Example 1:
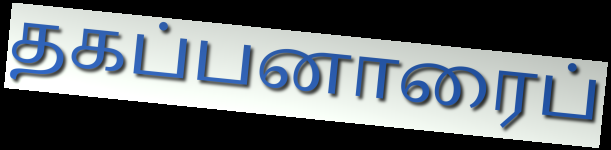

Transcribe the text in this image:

தகப்பனாரைப்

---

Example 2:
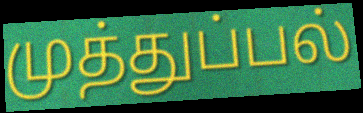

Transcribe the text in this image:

முத்துப்பல்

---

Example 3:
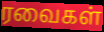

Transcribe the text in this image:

ரவைகள்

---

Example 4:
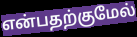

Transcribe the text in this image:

என்பதற்குமேல்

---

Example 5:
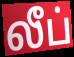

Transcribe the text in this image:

லீப்